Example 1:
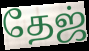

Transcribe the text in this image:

தேஜ்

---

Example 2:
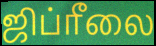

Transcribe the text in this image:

ஜிப்ரீலை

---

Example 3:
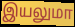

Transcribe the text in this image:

இயலுமா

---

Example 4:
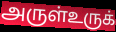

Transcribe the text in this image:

அருள்உருக்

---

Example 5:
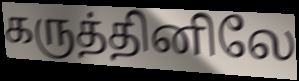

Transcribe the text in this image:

கருத்தினிலே